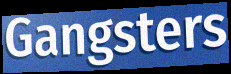
Gangsters